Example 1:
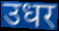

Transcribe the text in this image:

उधर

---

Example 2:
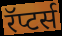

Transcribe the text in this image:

रॅप्टर्स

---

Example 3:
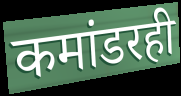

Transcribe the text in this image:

कमांडरही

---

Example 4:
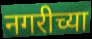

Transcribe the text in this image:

नगरीच्या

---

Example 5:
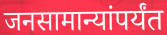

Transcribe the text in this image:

जनसामान्यांपर्यंत